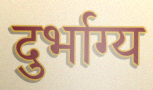
दुर्भाग्य